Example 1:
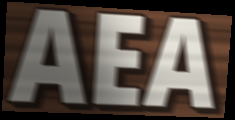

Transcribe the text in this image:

AEA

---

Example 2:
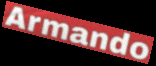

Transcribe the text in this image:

Armando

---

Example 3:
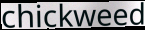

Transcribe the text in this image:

chickweed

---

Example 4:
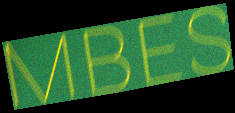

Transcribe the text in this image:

MBES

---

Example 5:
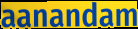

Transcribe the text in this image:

aanandam